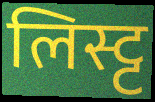
लिस्ट्ट